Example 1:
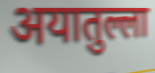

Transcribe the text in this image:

अयातुल्ला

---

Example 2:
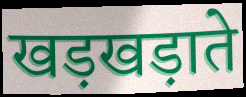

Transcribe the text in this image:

खड़खड़ाते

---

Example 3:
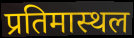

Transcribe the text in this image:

प्रतिमास्थल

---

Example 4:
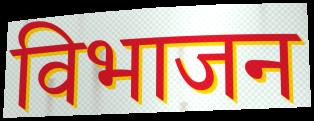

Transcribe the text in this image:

विभाजन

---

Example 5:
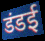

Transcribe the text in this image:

डंडई